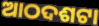
ଆଠଦଶଟା